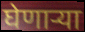
घेणार्‍या